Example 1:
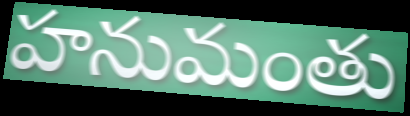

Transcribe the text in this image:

హనుమంతు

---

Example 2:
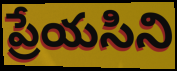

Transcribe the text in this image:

ప్రేయసిని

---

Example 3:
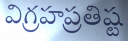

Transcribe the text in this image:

విగ్రహప్రతిష్ట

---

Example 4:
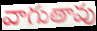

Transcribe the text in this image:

వాగుతావు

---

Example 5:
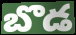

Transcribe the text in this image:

బొడ